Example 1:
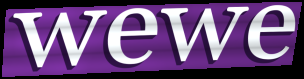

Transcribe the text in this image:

wewe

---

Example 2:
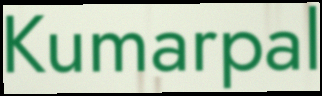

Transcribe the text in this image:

Kumarpal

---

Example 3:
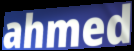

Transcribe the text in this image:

ahmed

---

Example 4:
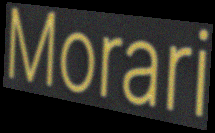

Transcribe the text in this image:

Morari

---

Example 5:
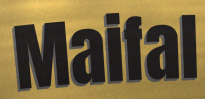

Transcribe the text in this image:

Maifal